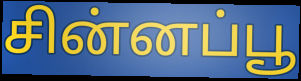
சின்னப்பூ